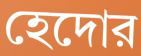
হেদোর